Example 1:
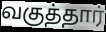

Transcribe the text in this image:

வகுத்தார்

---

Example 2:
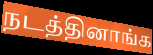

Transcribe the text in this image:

நடத்தினாங்க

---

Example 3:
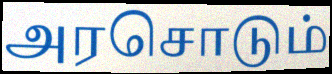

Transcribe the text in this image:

அரசொடும்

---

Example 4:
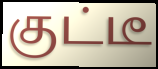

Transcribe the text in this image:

குட்டீ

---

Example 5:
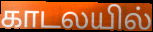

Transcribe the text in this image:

காடலயில்